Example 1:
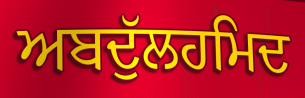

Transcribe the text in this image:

ਅਬਦੁੱਲਹਮਿਦ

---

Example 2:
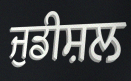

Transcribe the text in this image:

ਜੁਡੀਸ਼ਲ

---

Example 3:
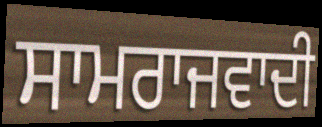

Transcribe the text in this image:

ਸਾਮਰਾਜਵਾਦੀ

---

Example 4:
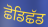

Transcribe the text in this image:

ਛੋਡਿਛੱਡ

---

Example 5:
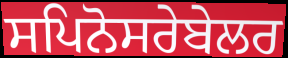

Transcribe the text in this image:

ਸਪਿਨੋਸਰੇਬੇਲਰ